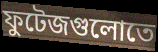
ফুটেজগুলোতে